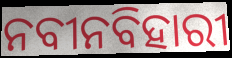
ନବୀନବିହାରୀ